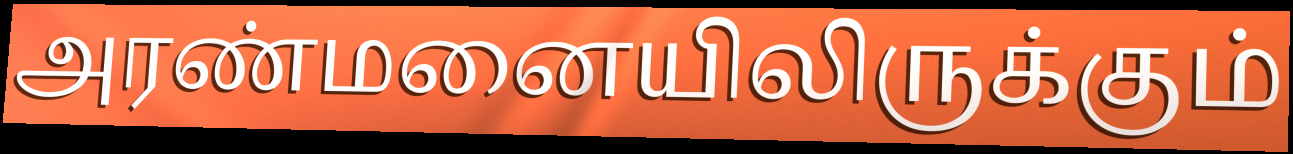
அரண்மனையிலிருக்கும்